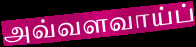
அவ்வளவாய்ப்